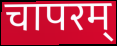
चापरम्